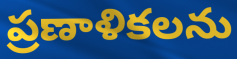
ప్రణాళికలను